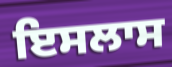
ਇਸਲਾਸ